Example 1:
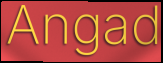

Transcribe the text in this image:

Angad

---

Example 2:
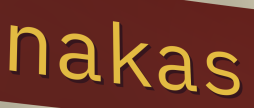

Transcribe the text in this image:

nakas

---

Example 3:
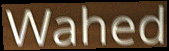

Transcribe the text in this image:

Wahed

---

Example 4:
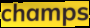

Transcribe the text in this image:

champs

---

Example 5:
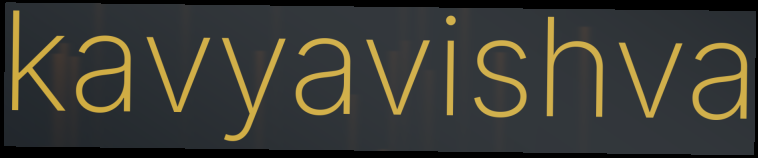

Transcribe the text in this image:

kavyavishva